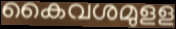
കൈവശമുളള